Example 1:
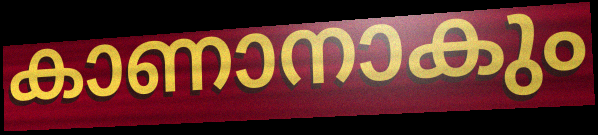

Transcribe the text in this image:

കാണാനാകും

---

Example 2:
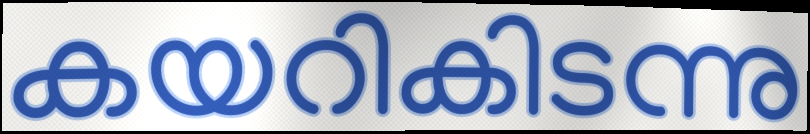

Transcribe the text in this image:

കയറികിടന്നു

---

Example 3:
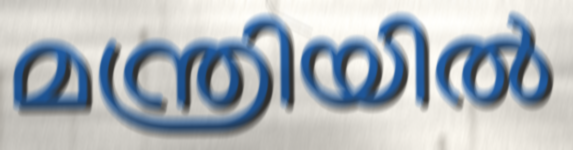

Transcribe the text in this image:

മന്ത്രിയിൽ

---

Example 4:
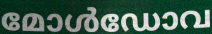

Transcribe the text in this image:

മോൾഡോവ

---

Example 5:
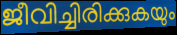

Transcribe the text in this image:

ജീവിച്ചിരിക്കുകയും